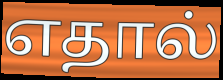
எதால்